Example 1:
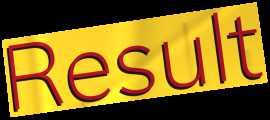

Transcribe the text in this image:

Result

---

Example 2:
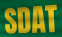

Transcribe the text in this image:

SDAT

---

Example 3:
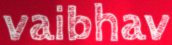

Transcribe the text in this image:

vaibhav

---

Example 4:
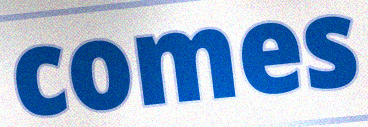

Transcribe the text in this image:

comes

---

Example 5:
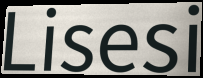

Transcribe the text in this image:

Lisesi